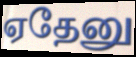
ஏதேனு